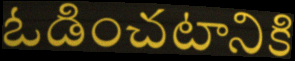
ఓడించటానికి